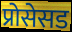
प्रोसेसड